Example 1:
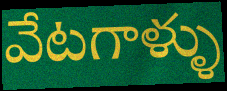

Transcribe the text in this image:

వేటగాళ్ళు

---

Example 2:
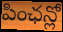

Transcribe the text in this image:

పింఛన్లో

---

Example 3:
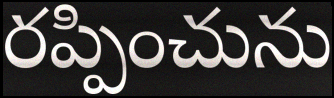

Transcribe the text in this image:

రప్పించును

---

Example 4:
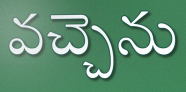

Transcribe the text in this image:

వచ్చెను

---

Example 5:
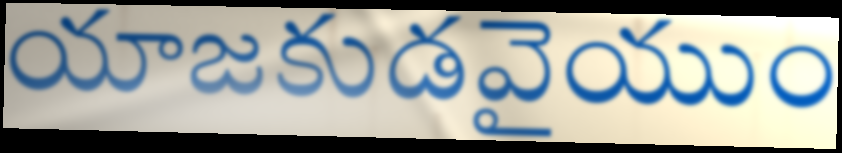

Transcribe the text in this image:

యాజకుడవైయుం